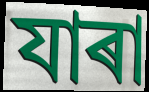
যাৰা